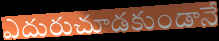
ఎదురుచూడకుండానే